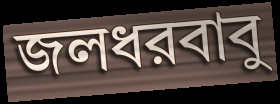
জলধরবাবু